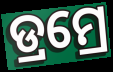
ଡ୍ରମ୍ରେ